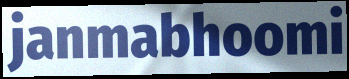
janmabhoomi